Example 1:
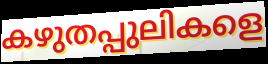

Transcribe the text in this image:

കഴുതപ്പുലികളെ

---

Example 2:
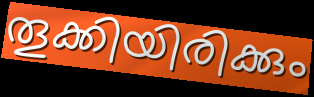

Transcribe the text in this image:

തൂക്കിയിരിക്കും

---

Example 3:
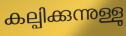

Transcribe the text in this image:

കല്പിക്കുന്നുള്ളു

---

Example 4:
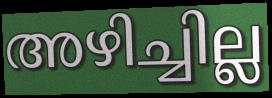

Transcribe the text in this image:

അഴിച്ചില്ല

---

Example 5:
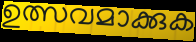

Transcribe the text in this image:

ഉത്സവമാക്കുക